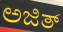
ಅಜಿತ್